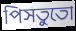
পিসতুতো